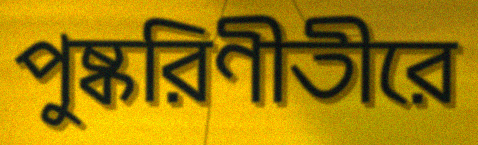
পুষ্করিণীতীরে